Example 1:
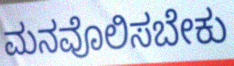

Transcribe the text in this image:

ಮನವೊಲಿಸಬೇಕು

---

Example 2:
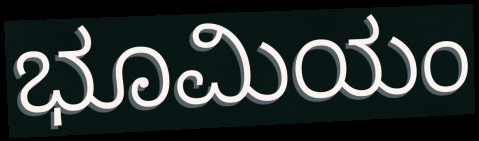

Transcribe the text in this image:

ಭೂಮಿಯಂ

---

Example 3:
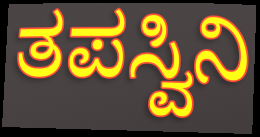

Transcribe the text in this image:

ತಪಸ್ವಿನಿ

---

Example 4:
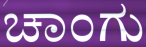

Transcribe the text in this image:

ಚಾಂಗು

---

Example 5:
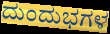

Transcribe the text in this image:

ದುಂದುಭಗಳ